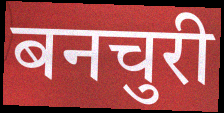
बनचुरी